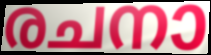
രചനാ